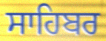
ਸਾਹਿਬਰ